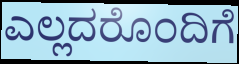
ಎಲ್ಲದರೊಂದಿಗೆ